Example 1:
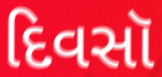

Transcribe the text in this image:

દિવસૉ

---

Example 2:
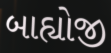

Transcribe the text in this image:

બાહ્યોજી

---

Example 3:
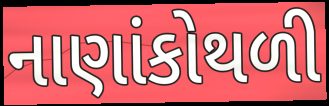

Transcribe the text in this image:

નાણાંકોથળી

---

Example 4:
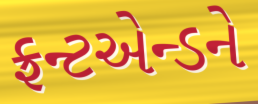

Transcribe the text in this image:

ફ્રન્ટએન્ડને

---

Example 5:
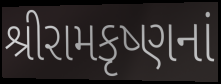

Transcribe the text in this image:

શ્રીરામકૃષ્ણનાં